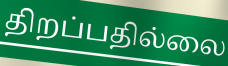
திறப்பதில்லை